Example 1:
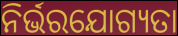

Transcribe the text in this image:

ନିର୍ଭରଯୋଗ୍ୟତା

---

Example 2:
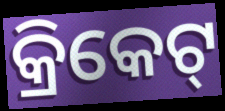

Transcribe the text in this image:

କ୍ରିକେଟ୍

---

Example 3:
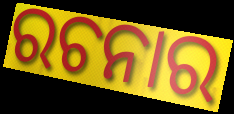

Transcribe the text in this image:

ରଚନାର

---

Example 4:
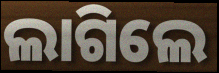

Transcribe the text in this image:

ଲାଗିଲେ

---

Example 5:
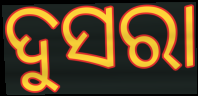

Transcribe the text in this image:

ଦୁସରା